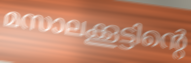
മസാലക്കൂട്ടിന്റെ